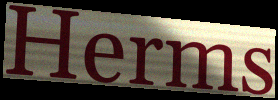
Herms